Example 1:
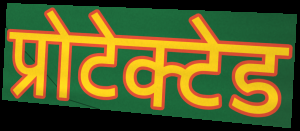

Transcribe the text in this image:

प्रोटेक्टेड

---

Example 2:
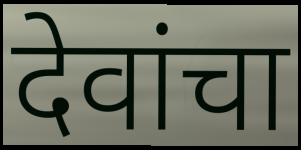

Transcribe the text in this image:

देवांचा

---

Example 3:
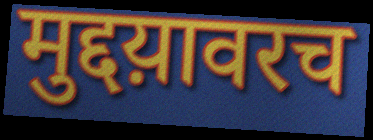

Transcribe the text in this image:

मुद्दय़ावरच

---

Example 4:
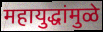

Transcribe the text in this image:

महायुद्धांमुळे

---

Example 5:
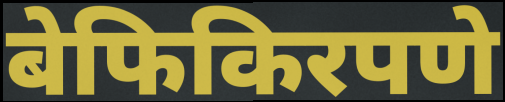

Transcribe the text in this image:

बेफिकिरपणे